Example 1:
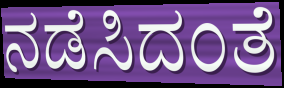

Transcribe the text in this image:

ನಡೆಸಿದಂತೆ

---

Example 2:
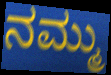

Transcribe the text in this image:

ನಮ್ಮು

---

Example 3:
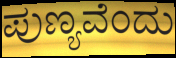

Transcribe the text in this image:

ಪುಣ್ಯವೆಂದು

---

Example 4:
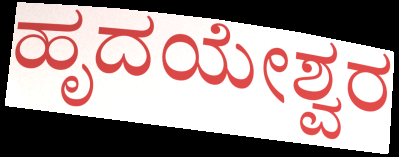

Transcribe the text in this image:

ಹೃದಯೇಶ್ವರ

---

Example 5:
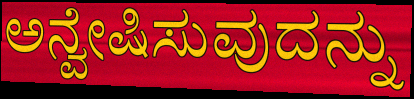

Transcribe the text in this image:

ಅನ್ವೇಷಿಸುವುದನ್ನು